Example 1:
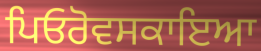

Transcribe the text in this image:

ਪਿਓਰੋਵਸਕਾਇਆ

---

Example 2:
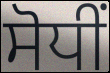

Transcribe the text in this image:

ਸੋਧੀਂ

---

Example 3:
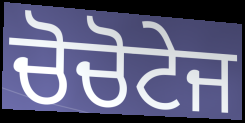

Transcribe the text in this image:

ਚੋਚੋਟੇਜ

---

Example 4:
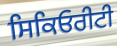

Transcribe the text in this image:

ਸਿਕਿਓਰੀਟੀ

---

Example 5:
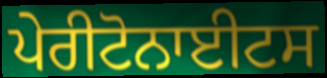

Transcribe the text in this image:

ਪੇਰੀਟੋਨਾਈਟਸ